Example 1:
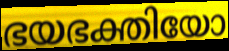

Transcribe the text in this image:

ഭയഭക്തിയോ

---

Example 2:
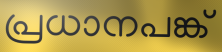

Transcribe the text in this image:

പ്രധാനപങ്ക്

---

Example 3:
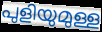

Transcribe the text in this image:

പുളിയുമുള്ള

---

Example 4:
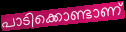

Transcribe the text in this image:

പാടിക്കൊണ്ടാണ്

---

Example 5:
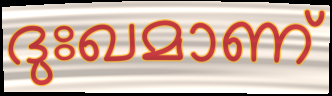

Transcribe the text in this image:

ദുഃഖമാണ്